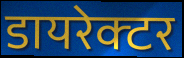
डायरेक्‍टर